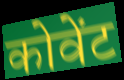
कोवेंट